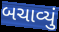
બચાવ્યું